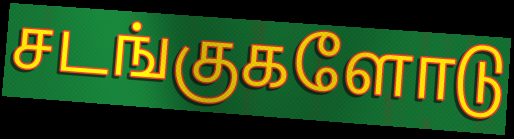
சடங்குகளோடு